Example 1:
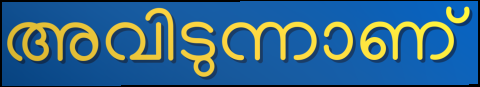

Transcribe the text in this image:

അവിടുന്നാണ്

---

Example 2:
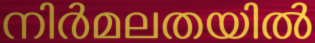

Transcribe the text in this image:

നിർമലതയിൽ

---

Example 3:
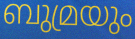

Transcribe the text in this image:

ബുമ്രയും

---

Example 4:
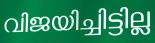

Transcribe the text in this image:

വിജയിച്ചിട്ടില്ല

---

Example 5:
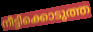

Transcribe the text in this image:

നീട്ടിക്കൊടുത്ത